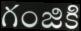
గంజికి